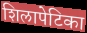
शिलापेटिका